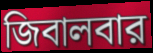
জিবালবার